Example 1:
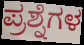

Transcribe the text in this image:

ಪ್ರಶ್ನೆಗಳ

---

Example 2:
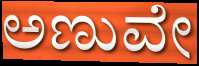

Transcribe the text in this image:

ಅಣುವೇ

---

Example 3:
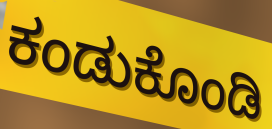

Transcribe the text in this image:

ಕಂಡುಕೊಂಡಿ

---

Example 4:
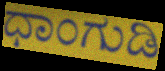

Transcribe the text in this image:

ಧಾಂಗುಡಿ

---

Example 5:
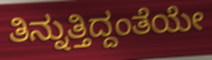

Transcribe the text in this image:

ತಿನ್ನುತ್ತಿದ್ದಂತೆಯೇ